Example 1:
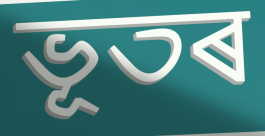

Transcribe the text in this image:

ভূতৰ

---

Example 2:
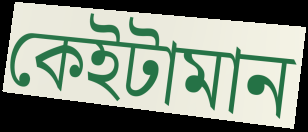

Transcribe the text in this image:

কেইটামান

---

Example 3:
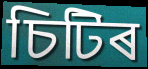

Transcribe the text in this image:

চিটিৰ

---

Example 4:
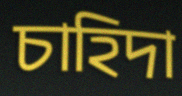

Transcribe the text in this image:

চাহিদা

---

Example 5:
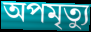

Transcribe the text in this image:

অপমৃত্যু